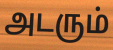
அடரும்